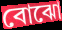
বোঝো